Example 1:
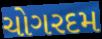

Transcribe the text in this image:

ચોગરદમ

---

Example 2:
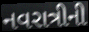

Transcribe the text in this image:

નવરાત્રીની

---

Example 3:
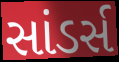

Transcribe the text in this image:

સાંડર્સ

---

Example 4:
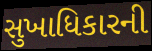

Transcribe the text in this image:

સુખાધિકારની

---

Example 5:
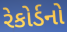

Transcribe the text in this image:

રેકોર્ડનો